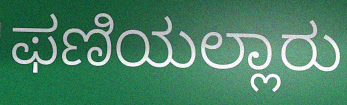
ಫಣಿಯಲ್ಲಾರು